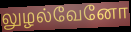
லுழல்வேனோ